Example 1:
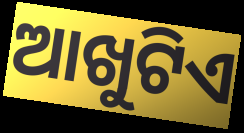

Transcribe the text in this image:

ଆଖୁଟିଏ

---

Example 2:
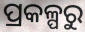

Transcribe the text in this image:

ପ୍ରକଳ୍ପରୁ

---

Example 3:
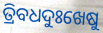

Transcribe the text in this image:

ତ୍ରିବଧଦୁଃଖେଷୁ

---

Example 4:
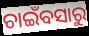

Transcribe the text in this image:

ଚାଇଁବସାରୁ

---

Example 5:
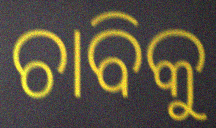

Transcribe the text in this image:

ଚାବିକୁ